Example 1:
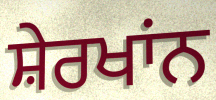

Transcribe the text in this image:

ਸ਼ੇਰਖਾਂਨ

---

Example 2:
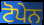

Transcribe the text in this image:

ਟੋਪੇਨ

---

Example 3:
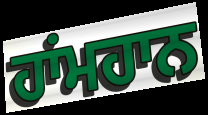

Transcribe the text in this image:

ਹਾਂਮਹਾਨ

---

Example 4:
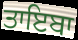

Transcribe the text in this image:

ਤਾਇਬਾ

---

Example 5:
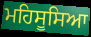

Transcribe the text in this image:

ਮਹਿਸੂਸਿਆ